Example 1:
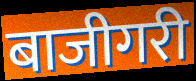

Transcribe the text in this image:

बाजीगरी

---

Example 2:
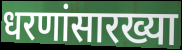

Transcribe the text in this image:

धरणांसारख्या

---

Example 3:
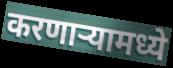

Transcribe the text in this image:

करणाऱ्यामध्ये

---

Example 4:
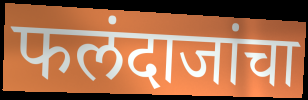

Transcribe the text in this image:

फलंदाजांचा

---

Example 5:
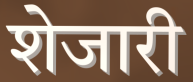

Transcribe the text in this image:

शेजारी